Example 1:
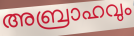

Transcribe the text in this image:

അബ്രാഹവും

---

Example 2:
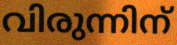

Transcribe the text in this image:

വിരുന്നിന്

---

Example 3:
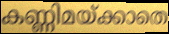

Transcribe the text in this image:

കണ്ണിമയ്ക്കാതെ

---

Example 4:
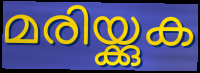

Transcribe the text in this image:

മരിയ്ക്കുക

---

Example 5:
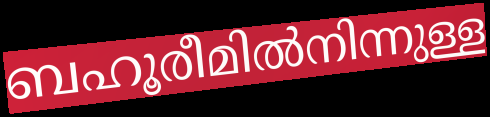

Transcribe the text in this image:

ബഹൂരീമിൽനിന്നുള്ള